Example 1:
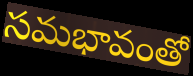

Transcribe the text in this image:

సమభావంతో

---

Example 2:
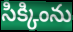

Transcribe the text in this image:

సిక్కింను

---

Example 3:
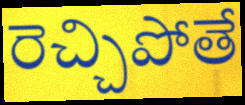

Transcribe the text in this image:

రెచ్చిపోతే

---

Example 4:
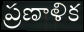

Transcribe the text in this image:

ప్రణాళిక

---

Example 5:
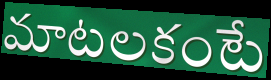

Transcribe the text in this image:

మాటలకంటే